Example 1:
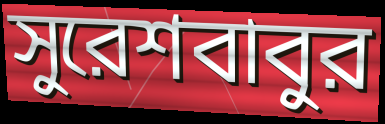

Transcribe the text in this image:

সুরেশবাবুর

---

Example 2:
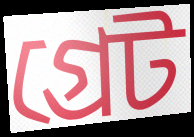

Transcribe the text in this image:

গ্রেট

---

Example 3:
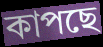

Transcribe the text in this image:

কাপছে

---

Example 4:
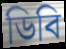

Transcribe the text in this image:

ডিবি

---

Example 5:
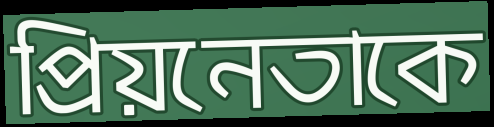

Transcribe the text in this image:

প্রিয়নেতাকে